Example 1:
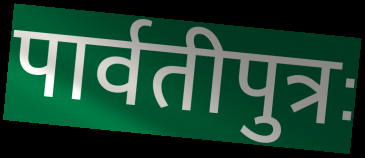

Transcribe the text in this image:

पार्वतीपुत्रः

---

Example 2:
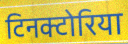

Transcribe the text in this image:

टिनक्टोरिया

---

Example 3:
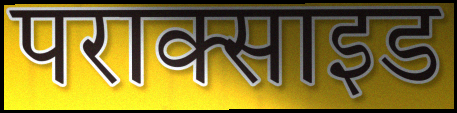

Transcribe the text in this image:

पराक्साइड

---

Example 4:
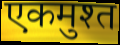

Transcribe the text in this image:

एकमुश्त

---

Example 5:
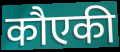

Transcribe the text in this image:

कौएकी